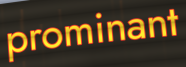
prominant